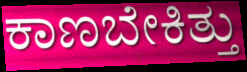
ಕಾಣಬೇಕಿತ್ತು